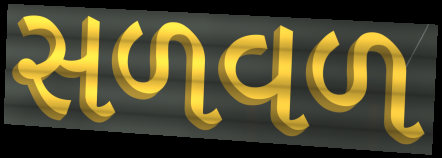
સળવળ